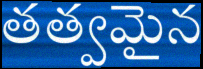
తత్వమైన